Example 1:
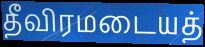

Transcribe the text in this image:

தீவிரமடையத்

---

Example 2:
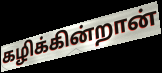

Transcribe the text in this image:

கழிக்கின்றான்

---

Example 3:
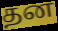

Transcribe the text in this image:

தன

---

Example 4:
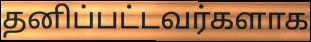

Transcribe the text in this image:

தனிப்பட்டவர்களாக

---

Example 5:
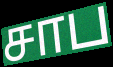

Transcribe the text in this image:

சாப